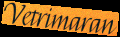
Vetrimaran